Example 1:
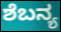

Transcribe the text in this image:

ಶೆಬನ್ಯ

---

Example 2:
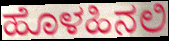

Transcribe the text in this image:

ಹೊಳಹಿನಲಿ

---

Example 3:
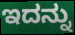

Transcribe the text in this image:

ಇದನ್ನು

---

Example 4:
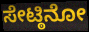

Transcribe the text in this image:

ಸೇಟ್ಠಿನೋ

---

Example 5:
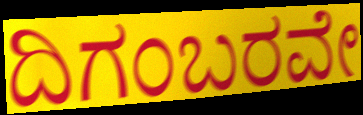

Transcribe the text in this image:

ದಿಗಂಬರವೇ